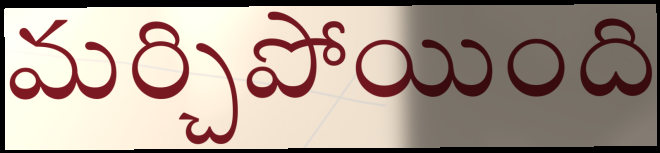
మర్చిపోయింది